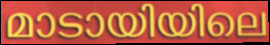
മാടായിയിലെ